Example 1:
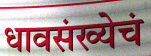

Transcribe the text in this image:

धावसंख्येचं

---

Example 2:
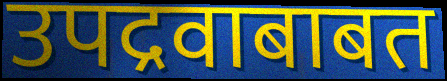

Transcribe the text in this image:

उपद्रवाबाबत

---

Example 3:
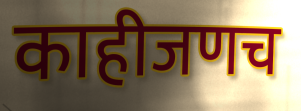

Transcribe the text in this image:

काहीजणच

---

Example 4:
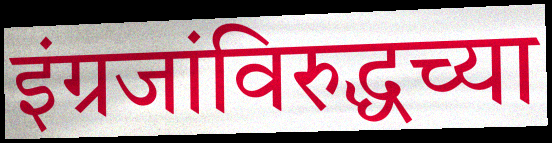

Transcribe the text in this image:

इंग्रजांविरुद्धच्या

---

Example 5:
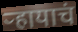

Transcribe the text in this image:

ऱ्हायाचं